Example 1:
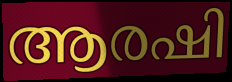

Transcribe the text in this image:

ആരഷി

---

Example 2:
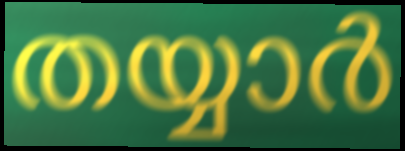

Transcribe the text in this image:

തയ്യാർ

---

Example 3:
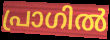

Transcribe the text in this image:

പ്രാഗിൽ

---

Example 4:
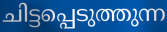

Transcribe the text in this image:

ചിട്ടപ്പെടുത്തുന്ന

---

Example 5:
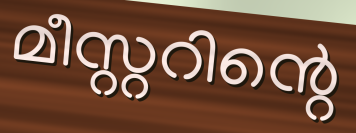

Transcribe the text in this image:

മീസ്റ്ററിന്റെ